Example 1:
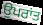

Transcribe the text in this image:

ਉਪਰਾਂਤ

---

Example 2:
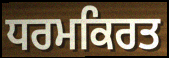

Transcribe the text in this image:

ਧਰਮਕਿਰਤ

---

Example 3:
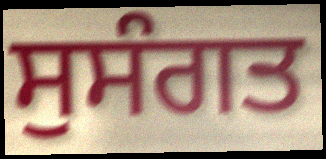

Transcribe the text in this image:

ਸੁਸੰਗਤ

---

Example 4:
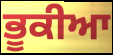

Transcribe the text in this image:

ਭੂਕੀਆ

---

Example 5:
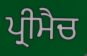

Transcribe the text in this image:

ਪ੍ਰੀਮੈਚ